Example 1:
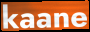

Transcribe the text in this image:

kaane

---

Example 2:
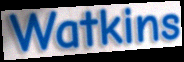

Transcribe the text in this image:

Watkins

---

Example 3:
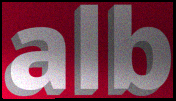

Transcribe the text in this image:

alb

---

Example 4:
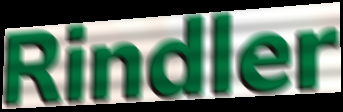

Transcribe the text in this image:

Rindler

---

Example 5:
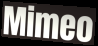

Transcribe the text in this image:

Mimeo